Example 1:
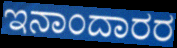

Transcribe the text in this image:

ಇನಾಂದಾರರ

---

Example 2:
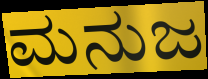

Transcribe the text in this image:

ಮನುಜ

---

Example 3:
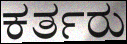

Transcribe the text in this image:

ಕರ್ತರು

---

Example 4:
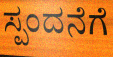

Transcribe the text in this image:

ಸ್ಪಂದನೆಗೆ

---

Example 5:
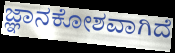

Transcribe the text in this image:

ಜ್ಞಾನಕೋಶವಾಗಿದೆ